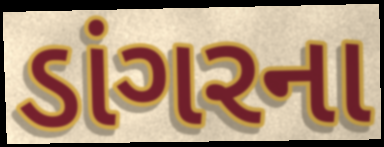
ડાંગરના